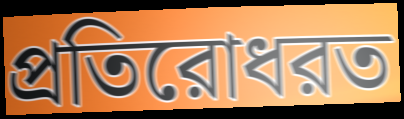
প্রতিরোধরত